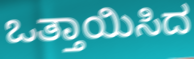
ಒತ್ತಾಯಿಸಿದ